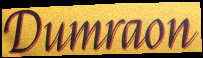
Dumraon